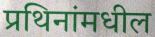
प्रथिनांमधील